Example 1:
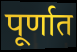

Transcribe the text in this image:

पूर्णात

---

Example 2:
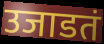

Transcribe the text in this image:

उजाडतं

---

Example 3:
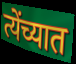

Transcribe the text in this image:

त्येंच्यात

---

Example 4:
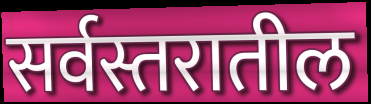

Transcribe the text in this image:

सर्वस्तरातील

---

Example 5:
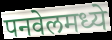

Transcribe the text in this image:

पनवेलमध्ये